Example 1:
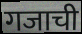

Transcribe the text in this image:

गजाची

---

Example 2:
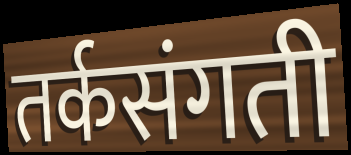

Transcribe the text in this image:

तर्कसंगती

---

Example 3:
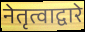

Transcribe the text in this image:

नेतृत्वाद्वारे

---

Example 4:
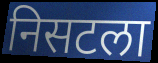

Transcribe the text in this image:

निसटला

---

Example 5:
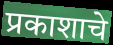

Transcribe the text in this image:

प्रकाशाचे